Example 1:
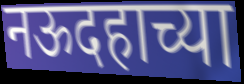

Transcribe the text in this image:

नऊदहाच्या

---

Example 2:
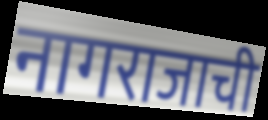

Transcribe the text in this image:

नागराजाची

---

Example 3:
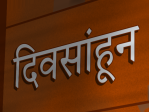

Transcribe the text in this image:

दिवसांहून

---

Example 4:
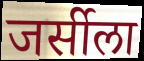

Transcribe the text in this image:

जर्सीला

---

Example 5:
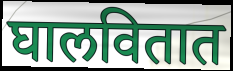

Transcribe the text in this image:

घालवितात